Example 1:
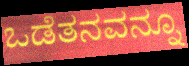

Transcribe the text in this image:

ಒಡೆತನವನ್ನೂ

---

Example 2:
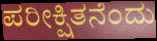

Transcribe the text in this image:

ಪರೀಕ್ಷಿತನೆಂದು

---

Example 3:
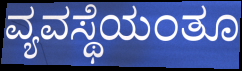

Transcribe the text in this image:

ವ್ಯವಸ್ಥೆಯಂತೂ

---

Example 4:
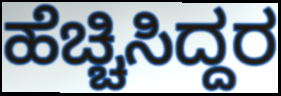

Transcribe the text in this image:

ಹೆಚ್ಚಿಸಿದ್ದರ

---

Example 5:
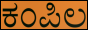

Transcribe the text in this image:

ಕಂಪಿಲ